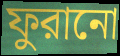
ফুরানো